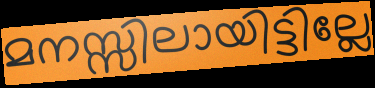
മനസ്സിലായിട്ടില്ലേ